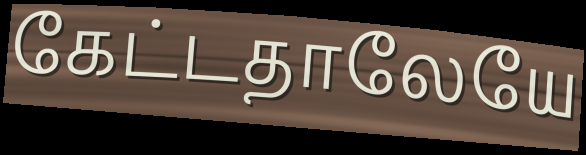
கேட்டதாலேயே